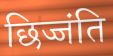
छिज्जंति